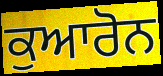
ਕੁਆਰੋਨ